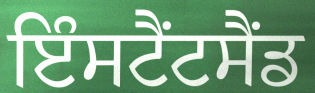
ਇੰਸਟੈਂਟਸੈਂਡ